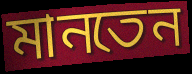
মানতেন